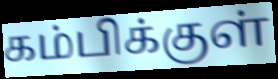
கம்பிக்குள்